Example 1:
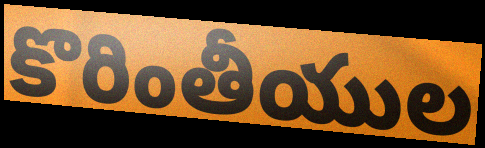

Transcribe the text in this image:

కొరింతీయుల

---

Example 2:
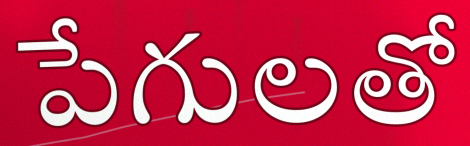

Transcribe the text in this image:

పేగులతో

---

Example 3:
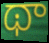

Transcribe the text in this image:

థా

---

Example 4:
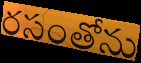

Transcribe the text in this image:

రసంతోను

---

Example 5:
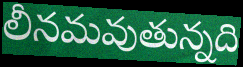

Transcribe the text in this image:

లీనమవుతున్నది